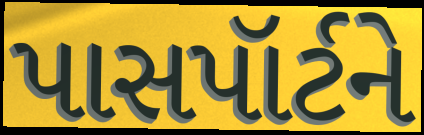
પાસપૉર્ટને